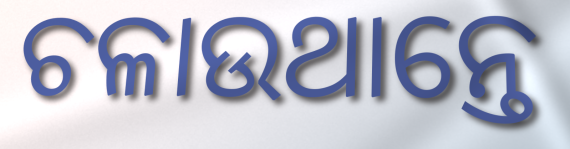
ଚଳାଉଥାନ୍ତେ